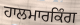
ਹਾਲਮਾਰਕਿੰਗ